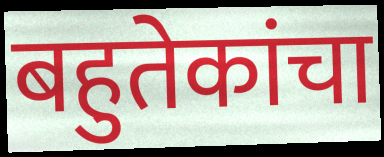
बहुतेकांचा